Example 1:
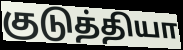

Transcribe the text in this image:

குடுத்தியா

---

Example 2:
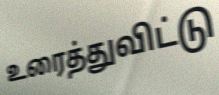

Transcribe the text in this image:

உரைத்துவிட்டு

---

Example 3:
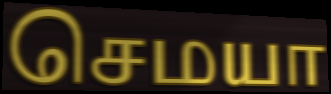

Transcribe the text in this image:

செமயா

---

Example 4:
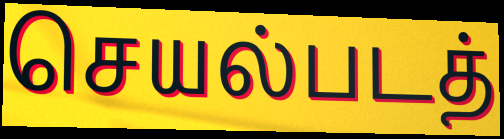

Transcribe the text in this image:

செயல்படத்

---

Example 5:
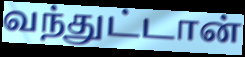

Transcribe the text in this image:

வந்துட்டான்